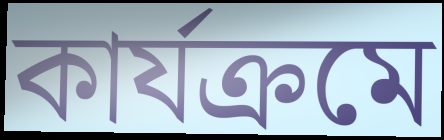
কার্যক্রমে